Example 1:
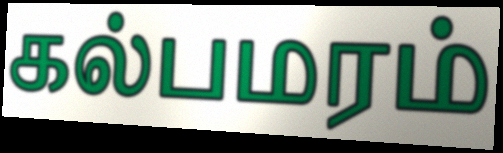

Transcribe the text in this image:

கல்பமரம்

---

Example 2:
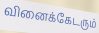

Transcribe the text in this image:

வினைக்கேடரும்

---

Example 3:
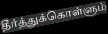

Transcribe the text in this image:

தீர்த்துக்கொள்ளும்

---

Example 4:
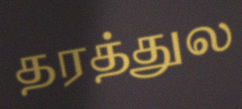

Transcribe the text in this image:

தரத்துல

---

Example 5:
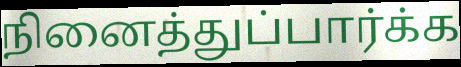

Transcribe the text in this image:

நினைத்துப்பார்க்க